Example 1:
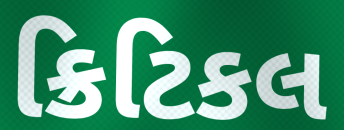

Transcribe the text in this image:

ક્રિટિકલ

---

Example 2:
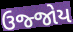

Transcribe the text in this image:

ઉજ્જોય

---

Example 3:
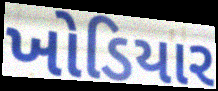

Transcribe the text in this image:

ખોડિયાર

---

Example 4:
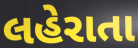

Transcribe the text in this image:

લહેરાતા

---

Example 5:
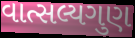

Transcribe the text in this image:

વાત્સલ્યગુણ